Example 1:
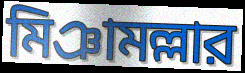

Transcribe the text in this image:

মিঞামল্লার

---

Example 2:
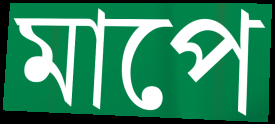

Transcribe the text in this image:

মাপে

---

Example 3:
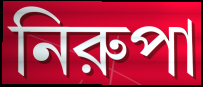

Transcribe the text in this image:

নিরুপা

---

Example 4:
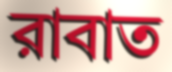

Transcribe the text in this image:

রাবাত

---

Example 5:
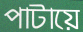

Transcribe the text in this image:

পাটায়ে